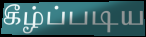
கீழ்ப்படிய